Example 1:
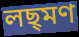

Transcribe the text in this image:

লছ্মণ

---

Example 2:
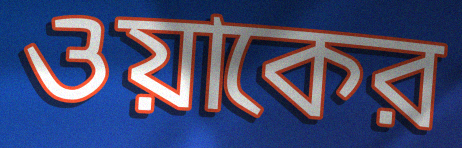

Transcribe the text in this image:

ওয়াকের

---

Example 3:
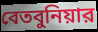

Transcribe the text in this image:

বেতবুনিয়ার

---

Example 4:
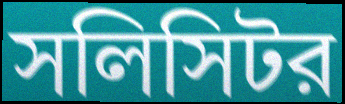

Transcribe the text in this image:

সলিসিটর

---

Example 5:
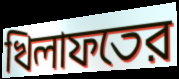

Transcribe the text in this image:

খিলাফতের